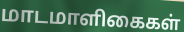
மாடமாளிகைகள்